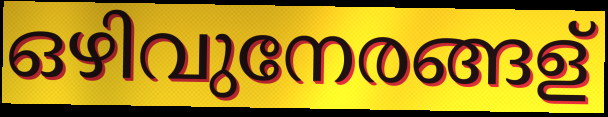
ഒഴിവുനേരങ്ങള്